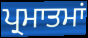
ਪ੍ਰਮਾਤਮਾਂ